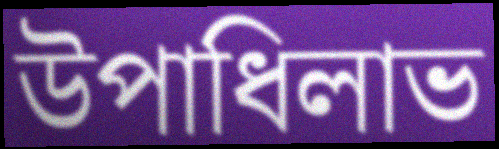
উপাধিলাভ